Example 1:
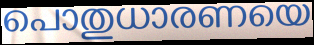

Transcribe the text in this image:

പൊതുധാരണയെ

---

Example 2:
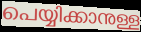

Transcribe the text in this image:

പെയ്യിക്കാനുള്ള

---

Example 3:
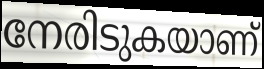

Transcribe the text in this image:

നേരിടുകയാണ്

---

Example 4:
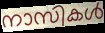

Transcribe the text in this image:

നാസികൾ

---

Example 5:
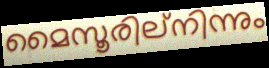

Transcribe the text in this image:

മൈസൂരില്നിന്നും